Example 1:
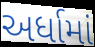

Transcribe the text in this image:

અર્ધામાં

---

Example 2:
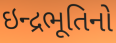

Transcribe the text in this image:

ઇન્દ્રભૂતિનો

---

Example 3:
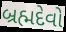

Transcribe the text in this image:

બ્રહ્મદેવો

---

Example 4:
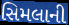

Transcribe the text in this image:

સિમલાની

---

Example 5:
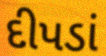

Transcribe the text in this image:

દીપડાં